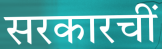
सरकारचीं